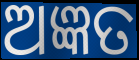
ଅଜ୍ଞତ